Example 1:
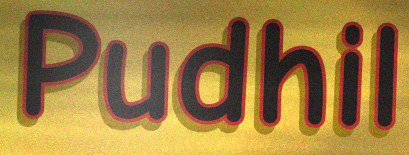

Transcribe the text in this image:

Pudhil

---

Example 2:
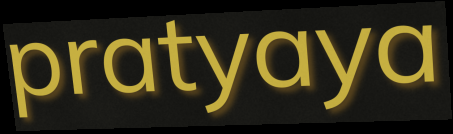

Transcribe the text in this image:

pratyaya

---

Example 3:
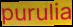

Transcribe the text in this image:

purulia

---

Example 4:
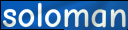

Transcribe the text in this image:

soloman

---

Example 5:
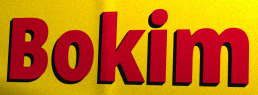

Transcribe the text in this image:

Bokim